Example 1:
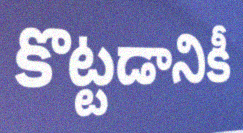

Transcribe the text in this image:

కొట్టడానికీ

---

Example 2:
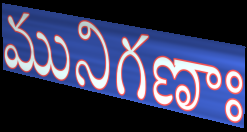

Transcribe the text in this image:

మునిగణాః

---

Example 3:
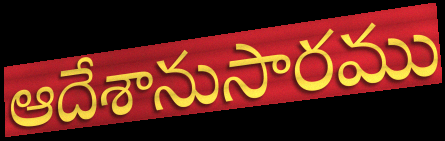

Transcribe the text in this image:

ఆదేశానుసారము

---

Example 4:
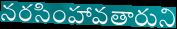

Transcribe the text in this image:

నరసింహావతారుని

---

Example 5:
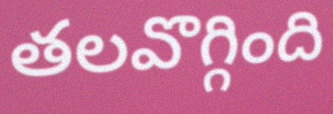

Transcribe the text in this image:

తలవొగ్గింది